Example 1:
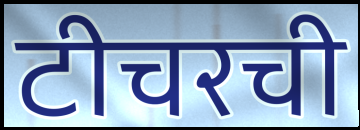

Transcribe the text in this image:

टीचरची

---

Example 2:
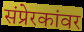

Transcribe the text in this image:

संप्रेरकांवर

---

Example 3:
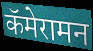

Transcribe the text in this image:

कॅमेरामन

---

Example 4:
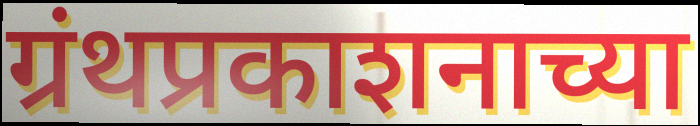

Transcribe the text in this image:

ग्रंथप्रकाशनाच्या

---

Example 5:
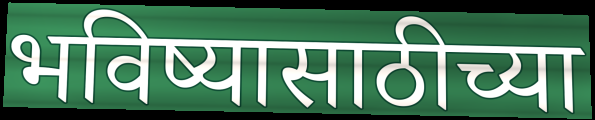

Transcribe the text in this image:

भविष्यासाठीच्या